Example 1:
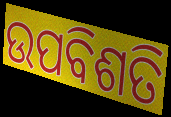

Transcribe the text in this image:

ଉପବିଶତି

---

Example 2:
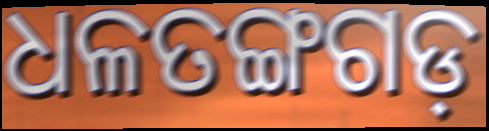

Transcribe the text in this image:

ଧଳତଙ୍ଗଗଡ଼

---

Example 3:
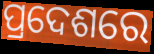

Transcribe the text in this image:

ପ୍ରଦେଶରେ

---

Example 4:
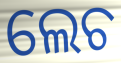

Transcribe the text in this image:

ଲେଚ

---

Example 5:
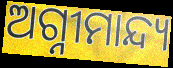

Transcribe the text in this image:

ଅଗ୍ନୀମାନ୍ଦ୍ୟ